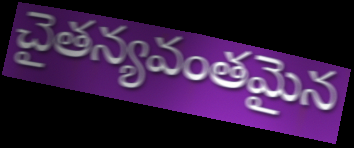
చైతన్యవంతమైన